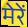
मेरें